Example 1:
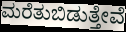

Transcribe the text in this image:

ಮರೆತುಬಿಡುತ್ತೇವೆ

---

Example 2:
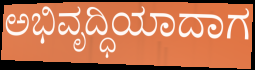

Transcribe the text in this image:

ಅಭಿವೃದ್ಧಿಯಾದಾಗ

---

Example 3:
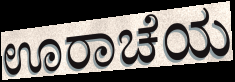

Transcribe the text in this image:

ಊರಾಚೆಯ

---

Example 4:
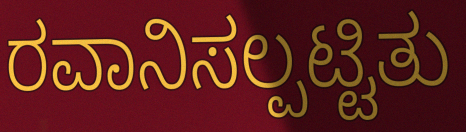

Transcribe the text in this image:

ರವಾನಿಸಲ್ಪಟ್ಟಿತು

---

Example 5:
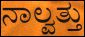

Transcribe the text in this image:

ನಾಲ್ವತ್ತು